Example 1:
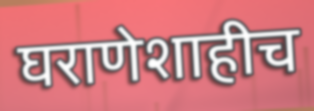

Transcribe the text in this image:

घराणेशाहीच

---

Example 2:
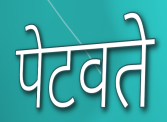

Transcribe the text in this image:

पेटवते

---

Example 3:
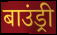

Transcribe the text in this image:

बाउंड्री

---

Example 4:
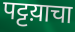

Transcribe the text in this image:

पट्टय़ाचा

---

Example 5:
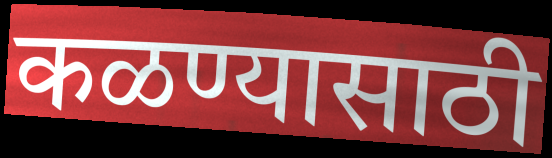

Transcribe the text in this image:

कळण्यासाठी